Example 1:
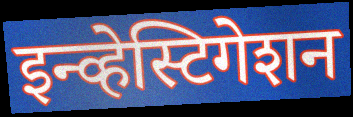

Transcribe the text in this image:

इन्व्हेस्टिगेशन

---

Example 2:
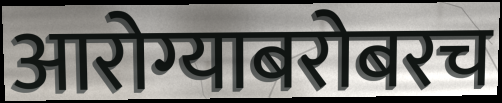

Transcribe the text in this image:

आरोग्याबरोबरच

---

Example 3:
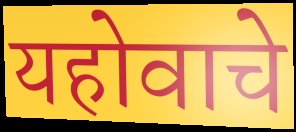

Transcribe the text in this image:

यहोवाचे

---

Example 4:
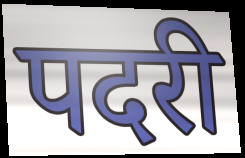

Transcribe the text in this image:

पदरी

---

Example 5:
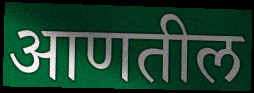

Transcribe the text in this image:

आणतील